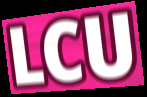
LCU